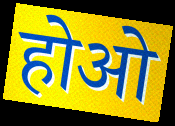
होओ